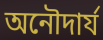
অনৌদার্য